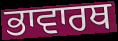
ਭਾਵਾਰਥ